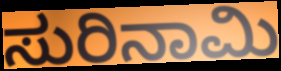
ಸುರಿನಾಮಿ